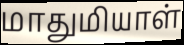
மாதுமியாள்